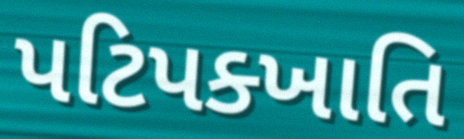
પટિપક્ખાતિ